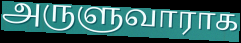
அருளுவாராக